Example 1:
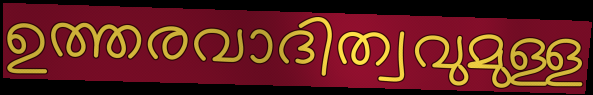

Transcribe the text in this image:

ഉത്തരവാദിത്വവുമുള്ള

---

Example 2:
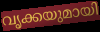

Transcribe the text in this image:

വൃക്കയുമായി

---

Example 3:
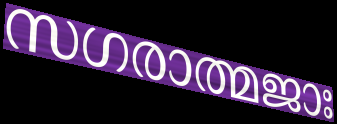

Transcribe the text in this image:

സഗരാത്മജാഃ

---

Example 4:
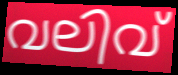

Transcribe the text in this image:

വലിവ്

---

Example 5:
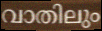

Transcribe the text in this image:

വാതിലും